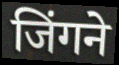
जिंगने